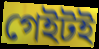
গেইটই